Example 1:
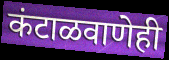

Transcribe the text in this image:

कंटाळवाणेही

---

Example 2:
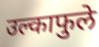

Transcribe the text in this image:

उल्काफुले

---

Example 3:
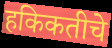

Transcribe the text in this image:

हकिकतीचे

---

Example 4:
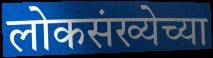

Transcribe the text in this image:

लोकसंख्‍येच्‍या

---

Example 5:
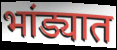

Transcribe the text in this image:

भांड्यात